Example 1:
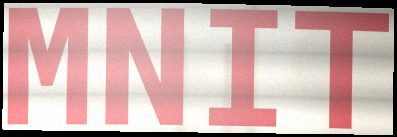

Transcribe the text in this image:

MNIT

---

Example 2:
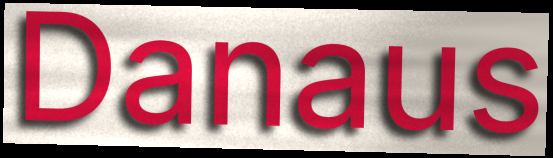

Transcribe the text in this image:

Danaus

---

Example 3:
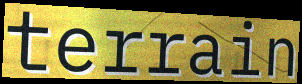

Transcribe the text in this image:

terrain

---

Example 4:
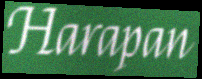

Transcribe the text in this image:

Harapan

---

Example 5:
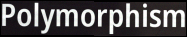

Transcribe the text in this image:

Polymorphism